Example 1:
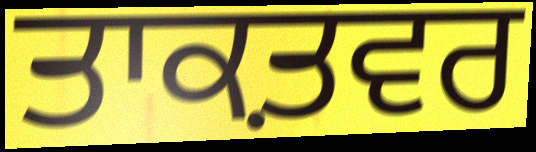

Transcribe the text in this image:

ਤਾਕ਼ਤਵਰ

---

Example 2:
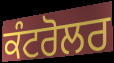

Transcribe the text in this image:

ਕੰਟਰੋਲਰ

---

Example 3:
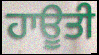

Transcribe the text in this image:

ਹਾਊਤੀ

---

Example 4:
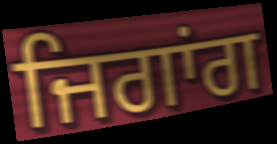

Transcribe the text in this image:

ਜਿਗਾਂਗ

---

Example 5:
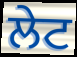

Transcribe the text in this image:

ਲੇਟ